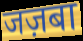
जज़बा